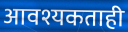
आवश्यकताही